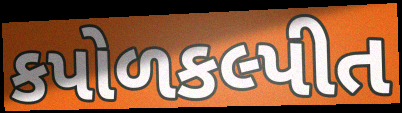
કપોળકલ્પીત